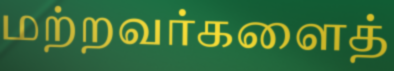
மற்றவர்களைத்